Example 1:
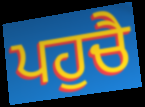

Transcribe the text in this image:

ਪਹੁਚੈ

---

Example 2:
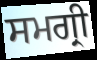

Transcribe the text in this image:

ਸਮਗ੍ਰੀ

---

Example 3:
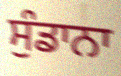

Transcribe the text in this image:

ਸੁੰਡਾਨਾ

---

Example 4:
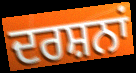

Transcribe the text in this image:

ਦਰਸ਼ਨਾਂ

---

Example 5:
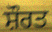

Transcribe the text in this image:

ਸ਼ੌਰਤ